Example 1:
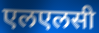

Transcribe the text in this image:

एलएलसी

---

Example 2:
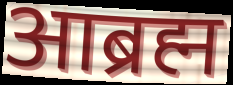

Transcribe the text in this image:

आब्रह्म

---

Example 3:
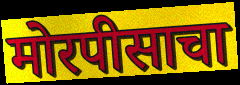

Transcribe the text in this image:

मोरपीसाचा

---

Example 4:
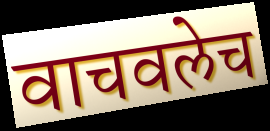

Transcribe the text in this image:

वाचवलेच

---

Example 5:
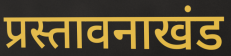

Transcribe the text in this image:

प्रस्तावनाखंड